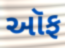
ઑફ